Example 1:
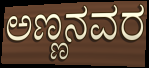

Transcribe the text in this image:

ಅಣ್ಣನವರ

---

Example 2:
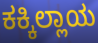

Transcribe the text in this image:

ಕಕ್ಕಿಲ್ಲಾಯ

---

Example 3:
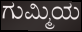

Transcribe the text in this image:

ಗುಮ್ಮಿಯ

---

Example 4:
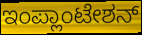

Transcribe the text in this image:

ಇಂಪ್ಲಾಂಟೇಶನ್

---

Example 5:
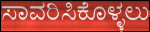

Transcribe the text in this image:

ಸಾವರಿಸಿಕೊಳ್ಳಲು